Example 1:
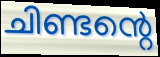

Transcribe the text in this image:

ചിണ്ടന്റെ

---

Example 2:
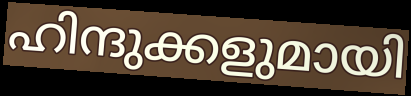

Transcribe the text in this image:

ഹിന്ദുക്കളുമായി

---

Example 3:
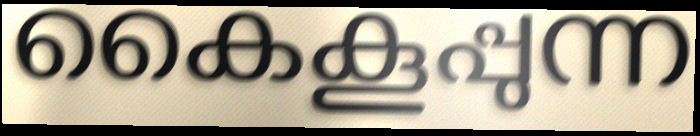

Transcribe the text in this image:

കൈകൂപ്പുന്ന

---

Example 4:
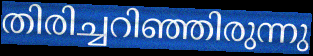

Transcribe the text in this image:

തിരിച്ചറിഞ്ഞിരുന്നു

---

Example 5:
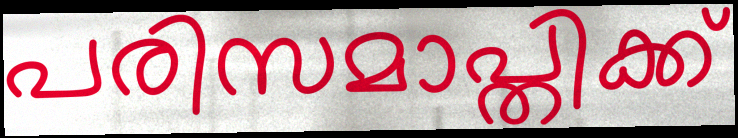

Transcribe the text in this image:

പരിസമാപ്തിക്ക്